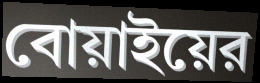
বোয়াইয়ের